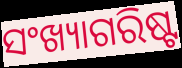
ସଂଖ୍ୟାଗରିଷ୍ଟ